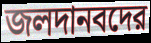
জলদানবদের